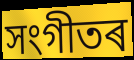
সংগীতৰ